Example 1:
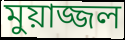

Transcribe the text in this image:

মুয়াজ্জল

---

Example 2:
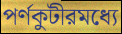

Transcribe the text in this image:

পর্ণকুটীরমধ্যে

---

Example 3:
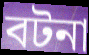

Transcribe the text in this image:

বটনা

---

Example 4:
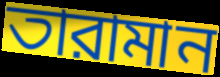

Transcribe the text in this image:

তারামান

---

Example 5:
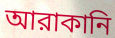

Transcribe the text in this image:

আরাকানি